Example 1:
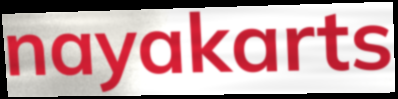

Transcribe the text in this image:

nayakarts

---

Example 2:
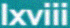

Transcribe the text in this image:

Ixviii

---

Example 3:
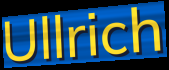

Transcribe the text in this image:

Ullrich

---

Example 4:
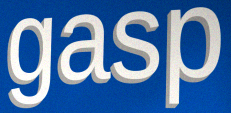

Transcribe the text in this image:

gasp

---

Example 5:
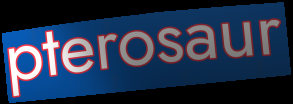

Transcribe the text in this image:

pterosaur